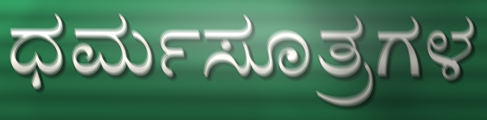
ಧರ್ಮಸೂತ್ರಗಳ